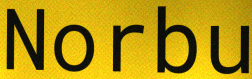
Norbu